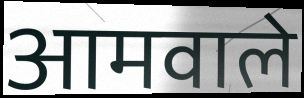
आमवाले